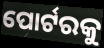
ପୋର୍ଟରକୁ